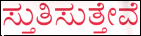
ಸ್ತುತಿಸುತ್ತೇವೆ